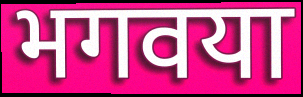
भगवया